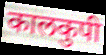
कालकुपी